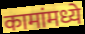
कामांमध्ये